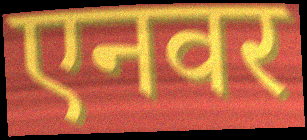
एनवर